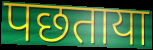
पछताया